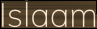
Islaam